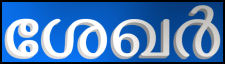
ശേഖർ